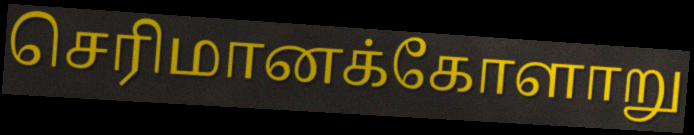
செரிமானக்கோளாறு